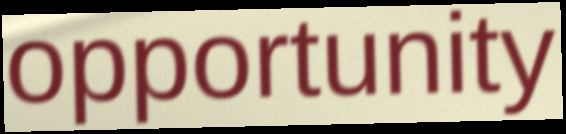
opportunity